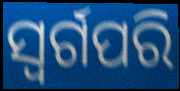
ସ୍ୱର୍ଗପରି